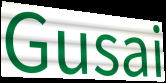
Gusai